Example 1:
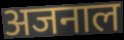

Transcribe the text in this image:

अजनाल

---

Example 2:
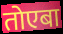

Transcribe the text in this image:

तोएबा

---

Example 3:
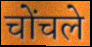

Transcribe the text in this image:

चोंचले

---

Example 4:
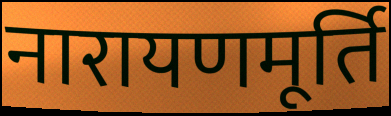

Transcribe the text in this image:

नारायणमूर्ति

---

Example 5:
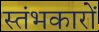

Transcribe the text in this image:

स्तंभकारों